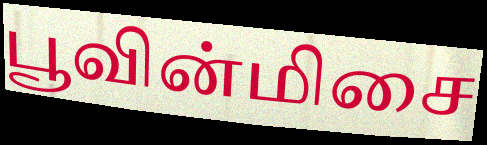
பூவின்மிசை